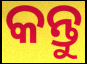
କନ୍ତୁ